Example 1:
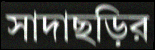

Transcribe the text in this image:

সাদাছড়ির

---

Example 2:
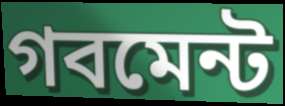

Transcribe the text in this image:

গবমেন্ট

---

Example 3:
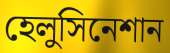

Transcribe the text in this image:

হেলুসিনেশান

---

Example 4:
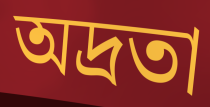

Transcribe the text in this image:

অদ্রতা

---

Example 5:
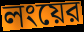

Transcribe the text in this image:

লংয়ের